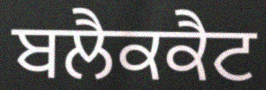
ਬਲੈਕਕੈਟ